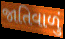
જાતિવાળું